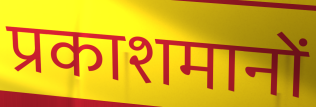
प्रकाशमानों